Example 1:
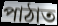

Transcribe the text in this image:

পাঠাত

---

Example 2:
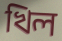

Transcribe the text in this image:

খিল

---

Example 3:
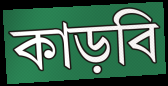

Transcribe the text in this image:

কাড়বি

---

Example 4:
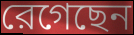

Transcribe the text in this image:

রেগেছেন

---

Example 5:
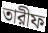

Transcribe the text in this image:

তারীফ